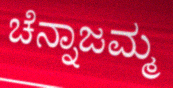
ಚೆನ್ನಾಜಮ್ಮ